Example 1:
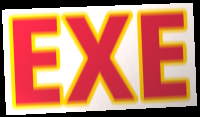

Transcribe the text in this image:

EXE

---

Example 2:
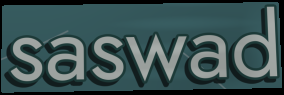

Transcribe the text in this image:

saswad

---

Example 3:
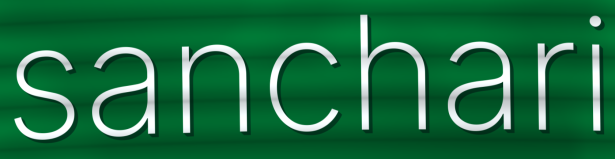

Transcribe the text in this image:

sanchari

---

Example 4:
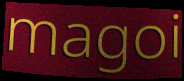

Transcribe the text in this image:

magoi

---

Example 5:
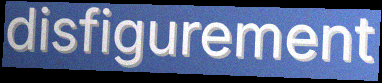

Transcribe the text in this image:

disfigurement